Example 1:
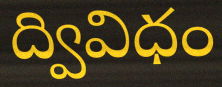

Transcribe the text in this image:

ద్వివిధం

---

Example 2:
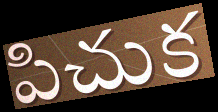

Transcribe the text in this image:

పిచుక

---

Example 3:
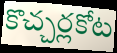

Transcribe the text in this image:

కొచ్చర్లకోట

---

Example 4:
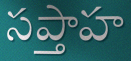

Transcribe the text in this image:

సప్తాహ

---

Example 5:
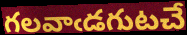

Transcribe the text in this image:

గలవాఁడగుటచే